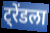
ट्रेंडला